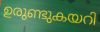
ഉരുണ്ടുകയറി